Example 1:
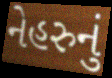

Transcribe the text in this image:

નેહરુનું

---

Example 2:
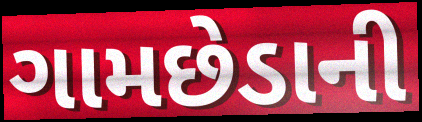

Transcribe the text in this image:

ગામછેડાની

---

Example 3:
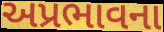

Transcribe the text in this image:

અપ્રભાવના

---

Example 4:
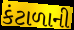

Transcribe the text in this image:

કંટાળાની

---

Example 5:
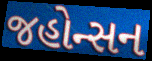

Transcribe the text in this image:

જહોન્સન